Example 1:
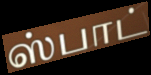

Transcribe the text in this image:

ஸ்பாட்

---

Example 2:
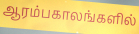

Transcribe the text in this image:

ஆரம்பகாலங்களில்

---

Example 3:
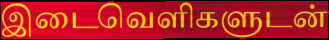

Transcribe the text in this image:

இடைவெளிகளுடன்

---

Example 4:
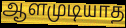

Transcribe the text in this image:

ஆளமுடியாத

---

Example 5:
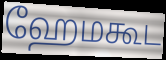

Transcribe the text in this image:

ஹேமகூட